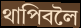
থাপিবলৈ